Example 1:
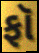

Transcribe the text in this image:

ફૉ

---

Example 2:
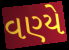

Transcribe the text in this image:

વણ્યે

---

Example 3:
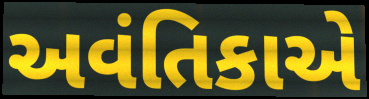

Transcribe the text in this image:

અવંતિકાએ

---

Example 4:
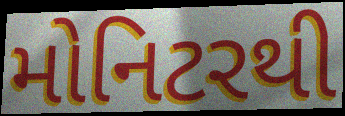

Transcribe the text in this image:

મોનિટરથી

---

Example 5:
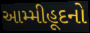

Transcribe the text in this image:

આમ્મીહૂદનો